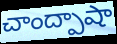
చాంద్పాషా